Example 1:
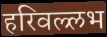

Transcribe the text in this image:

हरिवल्लभ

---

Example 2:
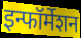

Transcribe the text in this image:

इन्फॉर्मेशन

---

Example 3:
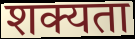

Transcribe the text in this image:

शक्‍यता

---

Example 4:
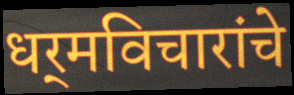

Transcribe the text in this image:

धर्मविचारांचे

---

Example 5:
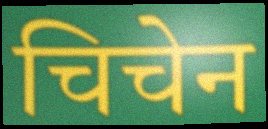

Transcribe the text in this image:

चिचेन